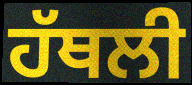
ਹੱਥਲੀ